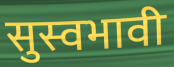
सुस्वभावी